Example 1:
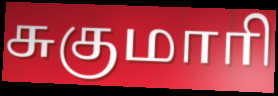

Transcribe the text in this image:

சுகுமாரி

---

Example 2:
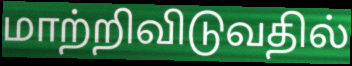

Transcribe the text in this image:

மாற்றிவிடுவதில்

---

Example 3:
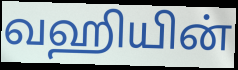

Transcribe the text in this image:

வஹியின்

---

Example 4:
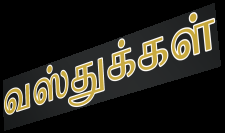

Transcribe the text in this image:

வஸ்துக்கள்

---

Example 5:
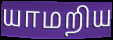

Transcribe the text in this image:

யாமறிய